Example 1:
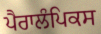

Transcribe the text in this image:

ਪੈਰਾਲੰਪਿਕਸ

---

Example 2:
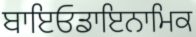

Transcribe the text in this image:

ਬਾਇਓਡਾਇਨਾਮਿਕ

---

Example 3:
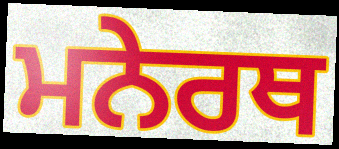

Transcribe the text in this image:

ਮਨੇਰਥ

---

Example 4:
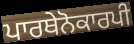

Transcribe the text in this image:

ਪਾਰਥੇਨੋਕਾਰਪੀ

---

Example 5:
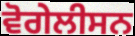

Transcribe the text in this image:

ਵੋਗੇਲੀਸਨ